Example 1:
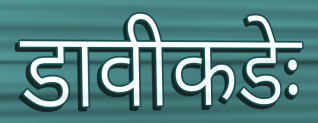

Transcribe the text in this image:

डावीकडेः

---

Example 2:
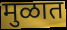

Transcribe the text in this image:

मुळात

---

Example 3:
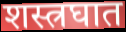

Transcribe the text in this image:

शस्त्रघात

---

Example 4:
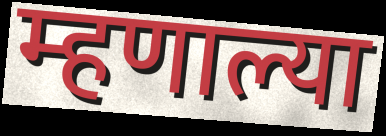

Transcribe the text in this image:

म्हणाल्या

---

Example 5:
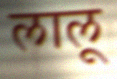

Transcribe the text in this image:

लालू